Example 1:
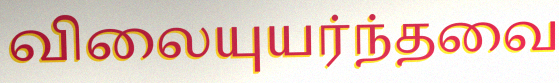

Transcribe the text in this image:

விலையுயர்ந்தவை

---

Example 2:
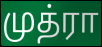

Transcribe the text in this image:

முத்ரா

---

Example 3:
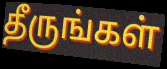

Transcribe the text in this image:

தீருங்கள்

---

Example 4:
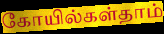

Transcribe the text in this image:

கோயில்கள்தாம்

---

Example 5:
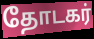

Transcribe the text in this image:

தோடகர்